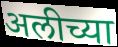
अलीच्या